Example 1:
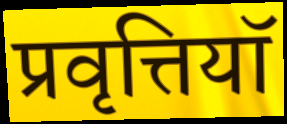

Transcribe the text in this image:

प्रवृत्तियॉ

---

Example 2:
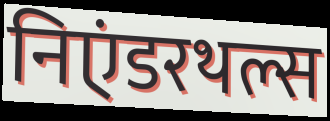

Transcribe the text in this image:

निएंडरथल्स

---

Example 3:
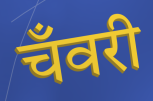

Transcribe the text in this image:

चँवरी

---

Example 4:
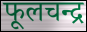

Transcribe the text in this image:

फूलचन्द्र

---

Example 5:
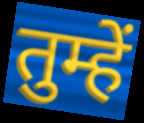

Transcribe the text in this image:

तुम्हें